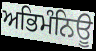
ਅਭਿਮੰਨਿਊ